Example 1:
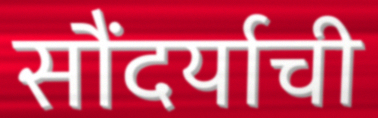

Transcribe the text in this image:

सौंदर्याची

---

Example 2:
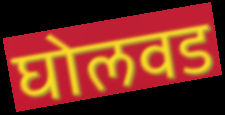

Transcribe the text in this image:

घोलवड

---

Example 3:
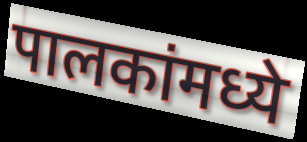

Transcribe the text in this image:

पालकांमध्ये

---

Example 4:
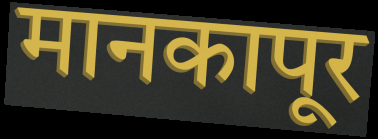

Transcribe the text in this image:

मानकापूर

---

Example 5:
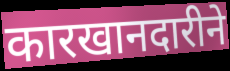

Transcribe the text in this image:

कारखानदारीने